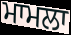
ਮਾਮਲਾ